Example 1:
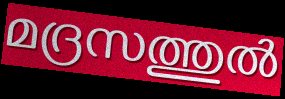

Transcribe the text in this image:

മദ്രസത്തുൽ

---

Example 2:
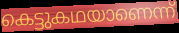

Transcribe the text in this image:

കെട്ടുകഥയാണെന്ന്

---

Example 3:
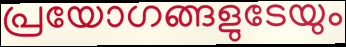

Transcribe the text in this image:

പ്രയോഗങ്ങളുടേയും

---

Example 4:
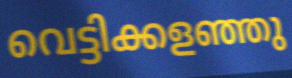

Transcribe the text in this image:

വെട്ടിക്കളഞ്ഞു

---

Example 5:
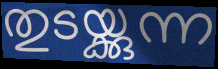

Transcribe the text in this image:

തുടയ്ക്കുന്ന